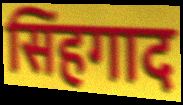
सिंहगाद